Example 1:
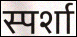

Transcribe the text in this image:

स्पर्शा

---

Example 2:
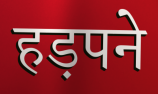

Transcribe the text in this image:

हड़पने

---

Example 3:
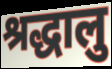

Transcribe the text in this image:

श्रद्धालु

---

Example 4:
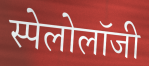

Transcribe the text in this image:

स्पेलोलॉजी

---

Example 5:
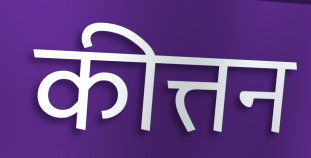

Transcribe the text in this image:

कीत्तन